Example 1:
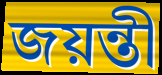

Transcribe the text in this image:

জয়ন্তী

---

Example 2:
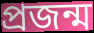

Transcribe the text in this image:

প্ৰজন্ম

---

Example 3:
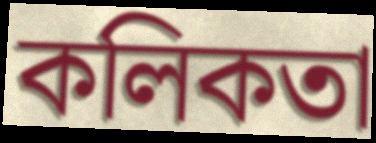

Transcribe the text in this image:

কলিকতা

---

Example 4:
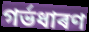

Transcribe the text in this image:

গৰ্ভধাৰণ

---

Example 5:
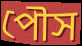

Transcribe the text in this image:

পৌস